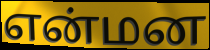
என்மன